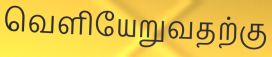
வெளியேறுவதற்கு